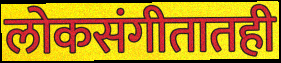
लोकसंगीतातही